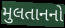
મુલતાનનો